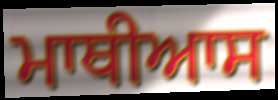
ਮਾਥੀਆਸ